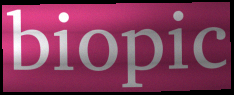
biopic